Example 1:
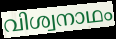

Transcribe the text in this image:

വിശ്വനാഥം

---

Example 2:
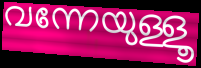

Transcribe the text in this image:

വന്നേയുള്ളൂ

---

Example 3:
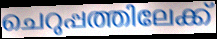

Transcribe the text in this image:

ചെറുപ്പത്തിലേക്ക്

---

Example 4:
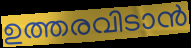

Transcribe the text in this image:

ഉത്തരവിടാൻ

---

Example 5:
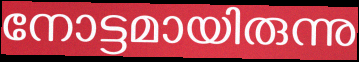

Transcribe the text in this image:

നോട്ടമായിരുന്നു